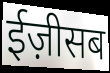
ईज़ीसब